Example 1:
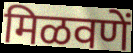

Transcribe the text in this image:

मिळवणें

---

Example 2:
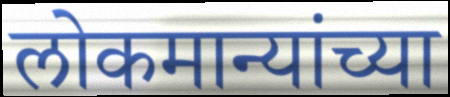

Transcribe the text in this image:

लोकमान्यांच्या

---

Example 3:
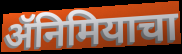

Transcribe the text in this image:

ॲनिमियाचा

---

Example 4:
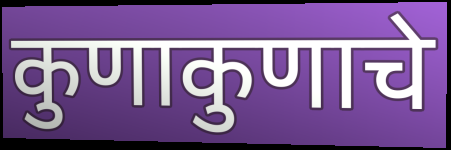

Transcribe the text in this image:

कुणाकुणाचे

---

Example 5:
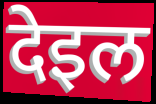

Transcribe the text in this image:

देइल